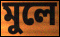
মুলে